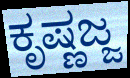
ಕೃಷ್ಣಜ್ಜ